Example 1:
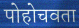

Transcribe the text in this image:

पोहोचवता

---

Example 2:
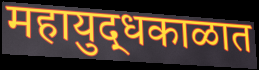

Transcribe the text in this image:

महायुद्धकाळात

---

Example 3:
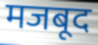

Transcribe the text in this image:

मजबूद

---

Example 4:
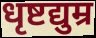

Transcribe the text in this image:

धृष्टद्युम्र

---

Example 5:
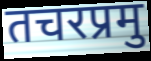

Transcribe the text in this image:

तचरप्रमु